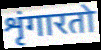
शृंगारतो